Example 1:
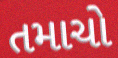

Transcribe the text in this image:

તમાચો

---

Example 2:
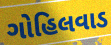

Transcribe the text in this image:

ગોહિલવાડ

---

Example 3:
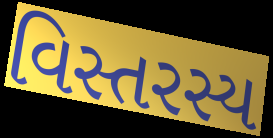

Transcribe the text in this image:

વિસ્તરસ્ય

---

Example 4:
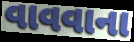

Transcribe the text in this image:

વાવવાના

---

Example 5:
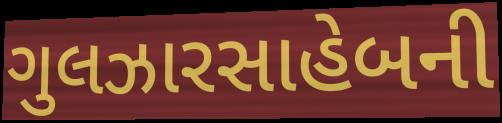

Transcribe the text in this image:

ગુલઝારસાહેબની